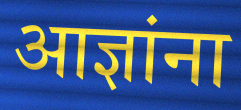
आज्ञांना